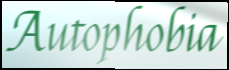
Autophobia